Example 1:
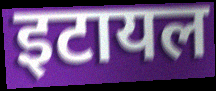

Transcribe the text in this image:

इटायल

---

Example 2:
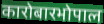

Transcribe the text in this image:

कारोबारभोपाल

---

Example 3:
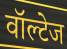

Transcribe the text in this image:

वॉल्टेज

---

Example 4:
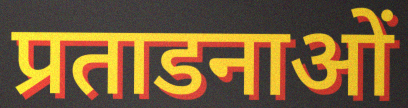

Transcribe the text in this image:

प्रताडनाओं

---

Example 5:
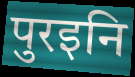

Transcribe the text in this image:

पुरइनि